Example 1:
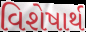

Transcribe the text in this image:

વિશેષાર્થ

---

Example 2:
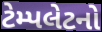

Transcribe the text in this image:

ટેમ્પલેટનો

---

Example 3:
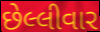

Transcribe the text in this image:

છેલ્લીવાર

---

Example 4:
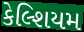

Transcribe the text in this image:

કેલ્શિયમ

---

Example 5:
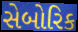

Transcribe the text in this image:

સેબોરિક